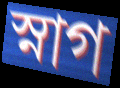
স্নাগ